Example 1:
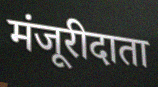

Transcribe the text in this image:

मंजूरीदाता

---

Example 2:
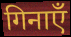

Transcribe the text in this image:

गिनाएँ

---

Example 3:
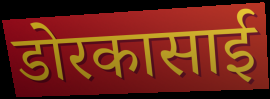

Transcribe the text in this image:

डोरकासाई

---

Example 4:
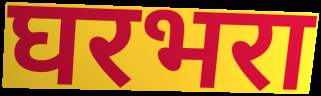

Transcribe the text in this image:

घरभरा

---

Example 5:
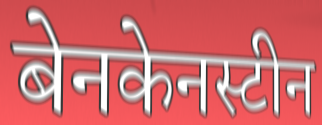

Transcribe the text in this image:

बेनकेनस्टीन